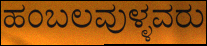
ಹಂಬಲವುಳ್ಳವರು